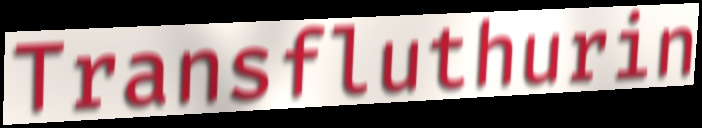
Transfluthurin